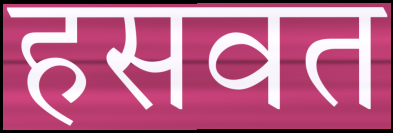
हसवत